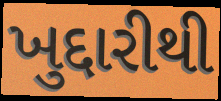
ખુદ્દારીથી